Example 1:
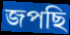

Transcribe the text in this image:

জপছি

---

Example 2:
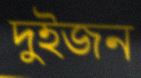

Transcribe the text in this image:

দুইজন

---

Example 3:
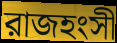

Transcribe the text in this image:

রাজহংসী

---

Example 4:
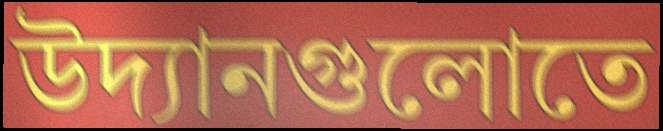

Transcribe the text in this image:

উদ্যানগুলোতে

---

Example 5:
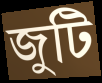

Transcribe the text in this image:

জুটি